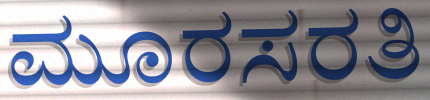
ಮೂರಸರತಿ